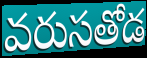
వరుసతోడ